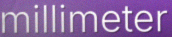
millimeter